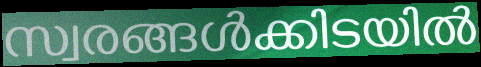
സ്വരങ്ങൾക്കിടയിൽ